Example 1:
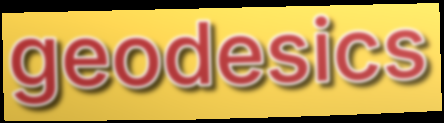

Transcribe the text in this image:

geodesics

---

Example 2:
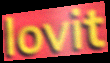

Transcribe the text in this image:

lovit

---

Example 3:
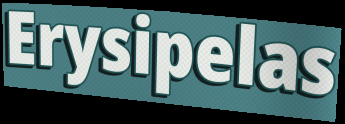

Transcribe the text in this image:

Erysipelas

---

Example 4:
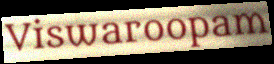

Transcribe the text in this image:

Viswaroopam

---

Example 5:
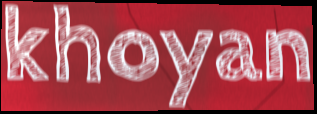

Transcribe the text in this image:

khoyan